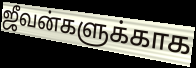
ஜீவன்களுக்காக